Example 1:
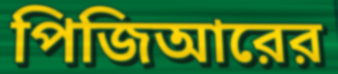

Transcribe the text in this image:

পিজিআরের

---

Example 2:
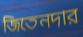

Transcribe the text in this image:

জিতেনদার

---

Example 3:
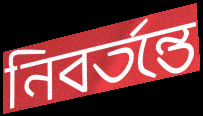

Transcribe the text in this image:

নিবর্তন্তে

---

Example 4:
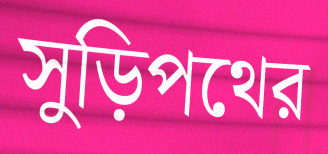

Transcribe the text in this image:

সুড়িপথের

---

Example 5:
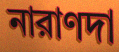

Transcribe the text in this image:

নারাণদা